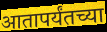
आतापर्यंतच्या